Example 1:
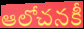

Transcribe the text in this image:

ఆలోచనకీ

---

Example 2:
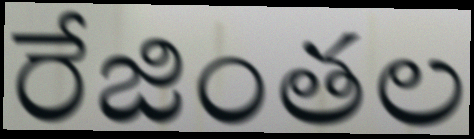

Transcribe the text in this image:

రేజింతల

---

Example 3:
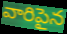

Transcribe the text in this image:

వారిపైన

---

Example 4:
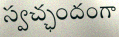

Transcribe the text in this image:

స్వచ్ఛందంగా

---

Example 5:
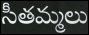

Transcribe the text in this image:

సీతమ్మలు